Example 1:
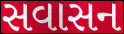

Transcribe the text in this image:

સવાસન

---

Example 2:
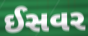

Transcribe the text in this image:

ઈસવર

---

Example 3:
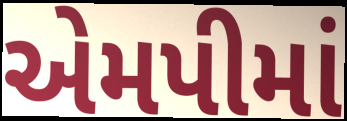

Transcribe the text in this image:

એમપીમાં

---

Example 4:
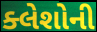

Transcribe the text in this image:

ક્લેશોની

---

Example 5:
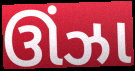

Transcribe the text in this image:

ઊંઝા